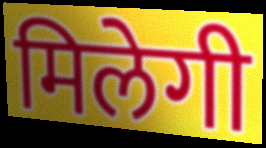
मिलेगी